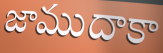
జాముదాకా